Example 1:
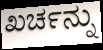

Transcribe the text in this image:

ಖರ್ಚನ್ನು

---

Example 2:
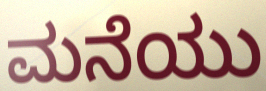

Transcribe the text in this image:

ಮನೆಯು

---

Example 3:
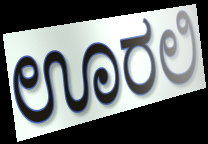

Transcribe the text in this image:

ಊರಲಿ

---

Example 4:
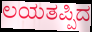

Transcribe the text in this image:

ಲಯತಪ್ಪಿದ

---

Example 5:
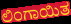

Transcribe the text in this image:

ಲಿಂಗಾಯಿತ